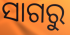
ସାଗରୁ